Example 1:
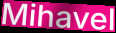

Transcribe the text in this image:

Mihavel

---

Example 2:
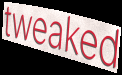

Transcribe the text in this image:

tweaked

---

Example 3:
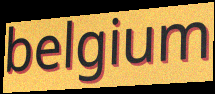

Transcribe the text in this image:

belgium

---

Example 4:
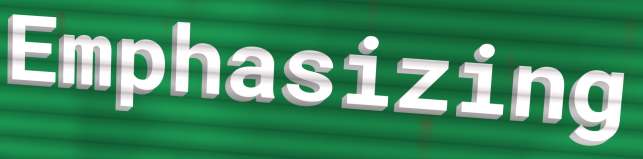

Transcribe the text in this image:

Emphasizing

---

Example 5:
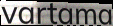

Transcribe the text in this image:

vartama